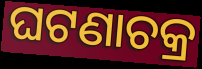
ଘଟଣାଚକ୍ର